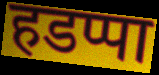
हडप्पा